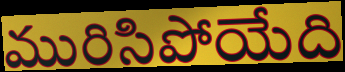
మురిసిపోయేది